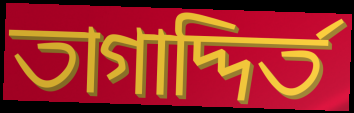
তাগাদ্দির্ত